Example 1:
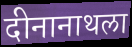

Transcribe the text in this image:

दीनानाथला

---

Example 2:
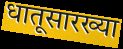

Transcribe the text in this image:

धातूसारख्या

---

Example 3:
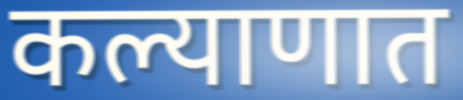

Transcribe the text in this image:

कल्याणात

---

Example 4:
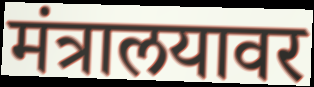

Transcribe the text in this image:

मंत्रालयावर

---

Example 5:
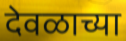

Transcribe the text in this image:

देवळाच्या